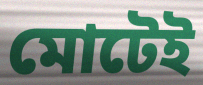
মোটেই